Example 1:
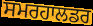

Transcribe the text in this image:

ਸਮਰਹਾਲਡਰ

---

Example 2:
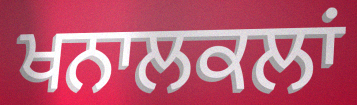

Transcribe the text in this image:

ਖਨਾਲਕਲਾਂ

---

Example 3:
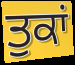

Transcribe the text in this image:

ਤੁਕਾਂ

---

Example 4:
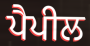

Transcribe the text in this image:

ਪੈਪੀਲ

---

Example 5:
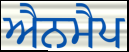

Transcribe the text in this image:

ਐਨਮੈਪ